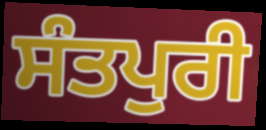
ਸੰਤਪੁਰੀ